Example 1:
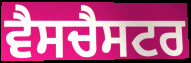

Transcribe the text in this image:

ਵੈਸਚੈਸਟਰ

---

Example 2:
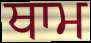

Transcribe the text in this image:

ਥਾਮ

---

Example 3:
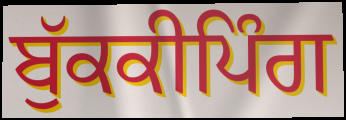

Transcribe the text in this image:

ਬੁੱਕਕੀਪਿੰਗ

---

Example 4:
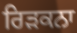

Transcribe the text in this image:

ਰਿੜਕਨਾ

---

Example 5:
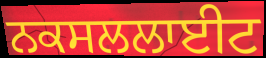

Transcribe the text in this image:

ਨਕਸਲਲਾਈਟ